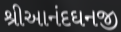
શ્રીઆનંદઘનજી